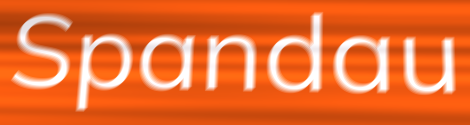
Spandau